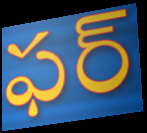
ఫర్